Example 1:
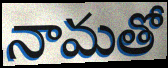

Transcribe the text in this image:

నామతో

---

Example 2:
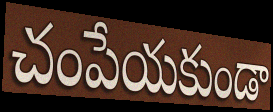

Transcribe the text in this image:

చంపేయకుండా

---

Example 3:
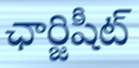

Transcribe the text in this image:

ఛార్జిషీట్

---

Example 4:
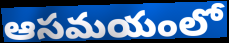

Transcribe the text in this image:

ఆసమయంలో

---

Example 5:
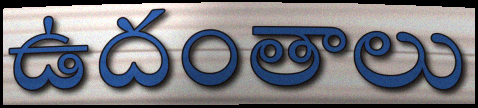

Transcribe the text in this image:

ఉదంతాలు